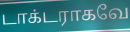
டாக்டராகவே